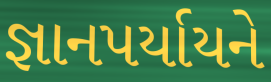
જ્ઞાનપર્યાયને